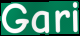
Gari